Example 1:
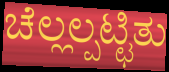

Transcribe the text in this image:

ಚೆಲ್ಲಲ್ಪಟ್ಟಿತು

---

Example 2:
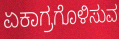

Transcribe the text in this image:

ಏಕಾಗ್ರಗೊಳಿಸುವ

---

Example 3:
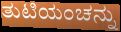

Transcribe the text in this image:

ತುಟಿಯಂಚನ್ನು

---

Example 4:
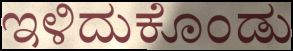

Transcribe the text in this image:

ಇಳಿದುಕೊಂಡು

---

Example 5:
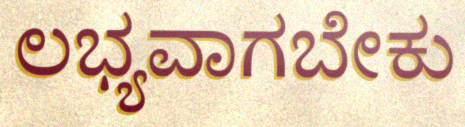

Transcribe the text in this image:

ಲಭ್ಯವಾಗಬೇಕು